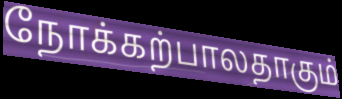
நோக்கற்பாலதாகும்